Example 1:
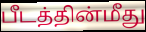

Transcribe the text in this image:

பீடத்தின்மீது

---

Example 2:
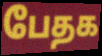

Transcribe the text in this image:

பேதக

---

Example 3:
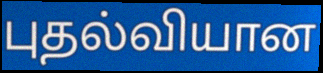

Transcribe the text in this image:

புதல்வியான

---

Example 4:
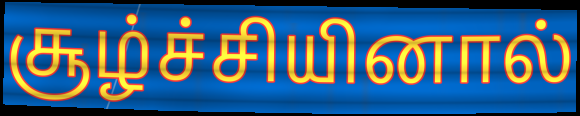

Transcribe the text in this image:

சூழ்ச்சியினால்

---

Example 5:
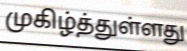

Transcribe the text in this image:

முகிழ்த்துள்ளது